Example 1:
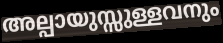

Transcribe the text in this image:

അല്പായുസ്സുള്ളവനും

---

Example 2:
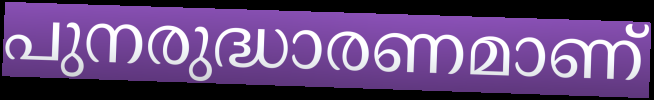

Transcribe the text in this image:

പുനരുദ്ധാരണമാണ്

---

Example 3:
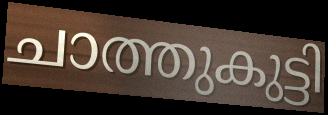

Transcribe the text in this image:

ചാത്തുകുട്ടി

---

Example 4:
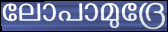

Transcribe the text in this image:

ലോപാമുദ്രേ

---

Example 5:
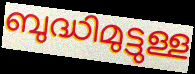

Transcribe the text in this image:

ബുദ്ധിമുട്ടുള്ള